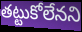
తట్టుకోలేనని